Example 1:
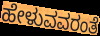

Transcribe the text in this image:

ಹೇಳುವವರಂತೆ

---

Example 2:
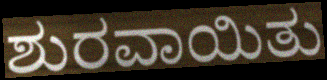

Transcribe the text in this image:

ಶುರವಾಯಿತು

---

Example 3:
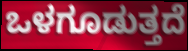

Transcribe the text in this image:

ಒಳಗೂಡುತ್ತದೆ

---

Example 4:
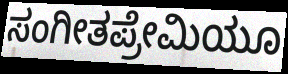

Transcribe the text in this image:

ಸಂಗೀತಪ್ರೇಮಿಯೂ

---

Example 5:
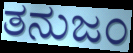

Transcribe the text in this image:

ತನುಜಂ